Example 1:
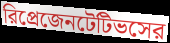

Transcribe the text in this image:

রিপ্রেজেনটেটিভসের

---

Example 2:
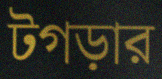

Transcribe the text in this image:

টগড়ার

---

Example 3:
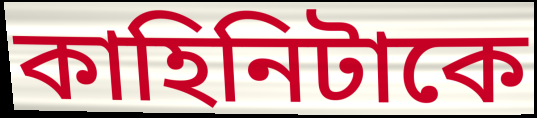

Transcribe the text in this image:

কাহিনিটাকে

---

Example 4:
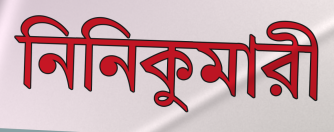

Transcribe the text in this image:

নিনিকুমারী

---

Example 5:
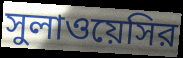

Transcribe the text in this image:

সুলাওয়েসির